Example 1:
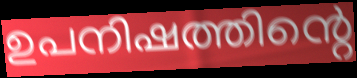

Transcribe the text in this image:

ഉപനിഷത്തിന്റെ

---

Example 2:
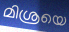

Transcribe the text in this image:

മിശ്രയെ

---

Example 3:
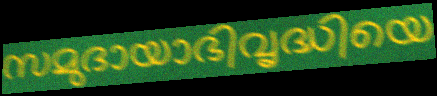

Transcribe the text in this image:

സമുദായാഭിവൃദ്ധിയെ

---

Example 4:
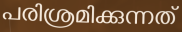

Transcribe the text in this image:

പരിശ്രമിക്കുന്നത്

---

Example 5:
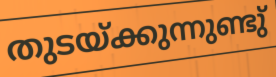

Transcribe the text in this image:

തുടയ്ക്കുന്നുണ്ടു്